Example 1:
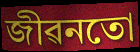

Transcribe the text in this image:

জীৱনতো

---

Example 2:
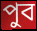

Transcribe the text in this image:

পুব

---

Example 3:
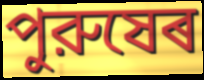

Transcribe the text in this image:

পুৰুষেৰ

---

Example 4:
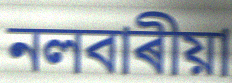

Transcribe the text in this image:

নলবাৰীয়া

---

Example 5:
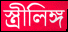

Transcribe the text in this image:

স্ত্ৰীলিঙ্গ